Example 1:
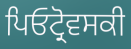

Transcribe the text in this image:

ਪਿਓਟ੍ਰੋਵਸਕੀ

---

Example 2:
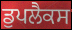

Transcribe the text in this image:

ਡੁਪਲੈਕਸ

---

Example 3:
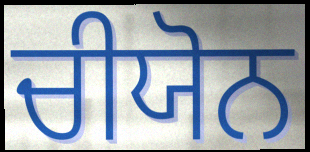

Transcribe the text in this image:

ਚੀਯੋਨ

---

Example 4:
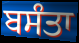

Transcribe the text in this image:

ਬਸੰਤਾ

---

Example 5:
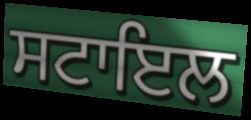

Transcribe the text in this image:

ਸਟਾਇਲ